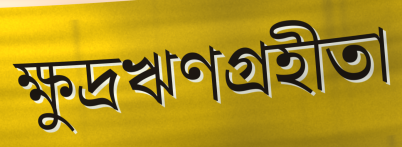
ক্ষুদ্রঋণগ্রহীতা